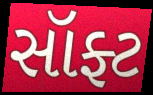
સૉફ્ટ